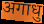
अगाधु